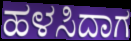
ಹಳಸಿದಾಗ